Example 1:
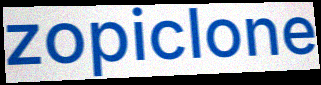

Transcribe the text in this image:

zopiclone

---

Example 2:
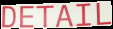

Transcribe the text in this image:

DETAIL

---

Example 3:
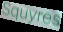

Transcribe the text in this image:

Squyres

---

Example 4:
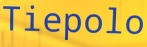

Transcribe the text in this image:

Tiepolo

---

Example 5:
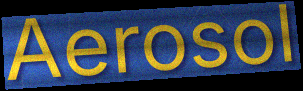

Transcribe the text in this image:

Aerosol